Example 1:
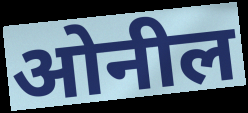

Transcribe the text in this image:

ओनील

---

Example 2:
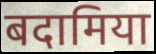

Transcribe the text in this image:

बदामिया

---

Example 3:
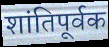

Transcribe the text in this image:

शांतिपूर्वक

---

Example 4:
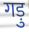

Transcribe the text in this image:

गड़ु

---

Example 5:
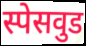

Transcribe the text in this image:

स्पेसवुड